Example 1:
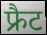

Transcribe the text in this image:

फ्रैट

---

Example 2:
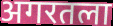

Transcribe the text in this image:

अगरतला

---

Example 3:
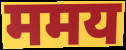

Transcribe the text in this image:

ममय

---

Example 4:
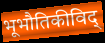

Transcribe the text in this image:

भूभौतिकीविद्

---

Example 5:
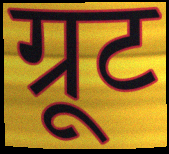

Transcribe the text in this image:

ग्रूट